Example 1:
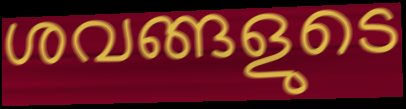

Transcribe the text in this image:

ശവങ്ങളുടെ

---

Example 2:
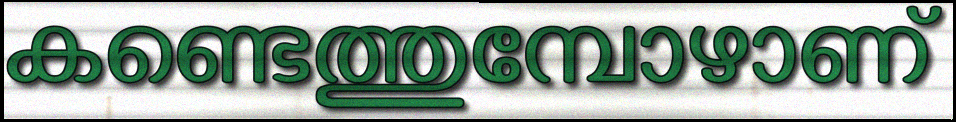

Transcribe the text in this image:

കണ്ടെത്തുമ്പോഴാണ്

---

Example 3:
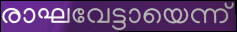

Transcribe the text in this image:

രാഘവേട്ടായെന്ന്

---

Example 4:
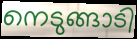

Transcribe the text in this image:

നെടുങ്ങാടി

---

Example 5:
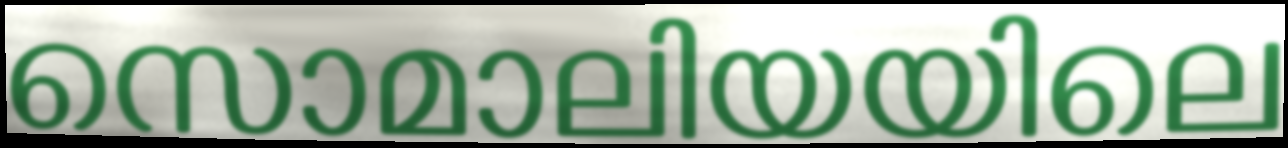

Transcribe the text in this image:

സൊമാലിയയിലെ